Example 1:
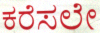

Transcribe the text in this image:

ಕರೆಸಲೇ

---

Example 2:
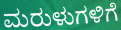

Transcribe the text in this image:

ಮರುಳುಗಳಿಗೆ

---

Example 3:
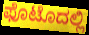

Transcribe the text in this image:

ಫೊಟೊದಲ್ಲಿ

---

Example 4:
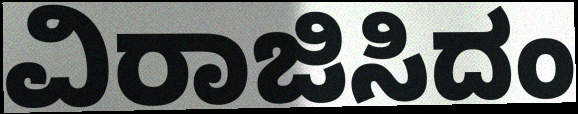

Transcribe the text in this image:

ವಿರಾಜಿಸಿದಂ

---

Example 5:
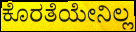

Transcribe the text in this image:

ಕೊರತೆಯೇನಿಲ್ಲ